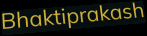
Bhaktiprakash